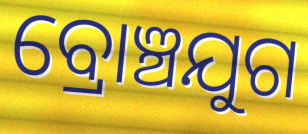
ବ୍ରୋଞ୍ଚଯୁଗ